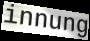
innung